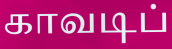
காவடிப்